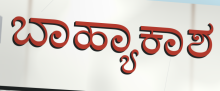
ಬಾಹ್ಯಾಕಾಶ